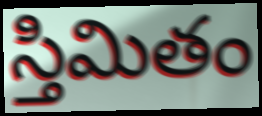
స్తిమితం